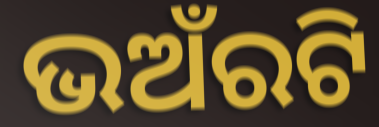
ଭଅଁରଟି